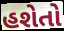
હશેતો